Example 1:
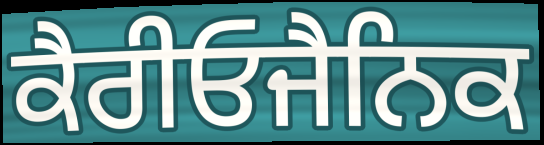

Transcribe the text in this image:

ਕੈਰੀਓਜੈਨਿਕ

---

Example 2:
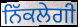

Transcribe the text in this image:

ਨਿੱਕਲੇਗੀ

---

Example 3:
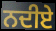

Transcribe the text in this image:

ਨਦੀਏ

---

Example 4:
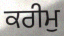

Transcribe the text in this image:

ਕਰੀਮੁ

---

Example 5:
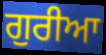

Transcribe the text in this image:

ਗੁਰੀਆ